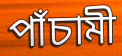
পাঁচামী